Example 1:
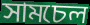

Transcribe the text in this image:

সামচেল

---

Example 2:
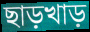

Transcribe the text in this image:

ছাড়খাড়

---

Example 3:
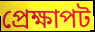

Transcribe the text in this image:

প্রেক্ষাপট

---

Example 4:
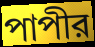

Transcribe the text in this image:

পাপীর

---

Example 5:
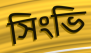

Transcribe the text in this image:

সিংভি